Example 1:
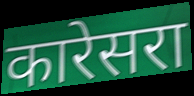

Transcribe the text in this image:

कारेसरा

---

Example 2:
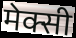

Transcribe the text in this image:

मेक्सी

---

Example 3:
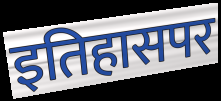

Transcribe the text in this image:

इतिहासपर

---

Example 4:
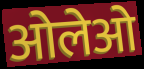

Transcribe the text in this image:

ओलेओ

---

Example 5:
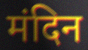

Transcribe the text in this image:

मंदिन